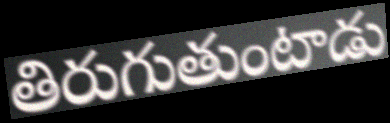
తిరుగుతుంటాడు